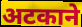
अटकाने